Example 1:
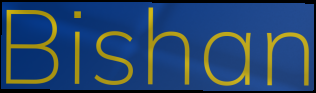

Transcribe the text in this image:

Bishan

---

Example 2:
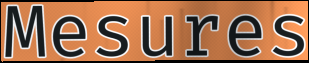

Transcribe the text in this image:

Mesures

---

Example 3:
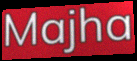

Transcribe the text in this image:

Majha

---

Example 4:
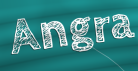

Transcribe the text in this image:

Angra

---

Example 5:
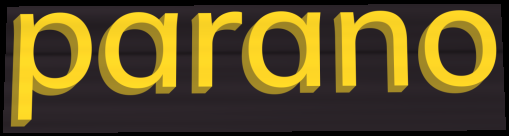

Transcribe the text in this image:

parano